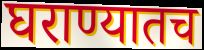
घराण्यातच